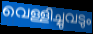
വെള്ളിച്ചുവടും